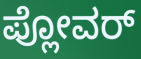
ಪ್ಲೋವರ್